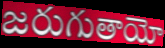
జరుగుతాయో